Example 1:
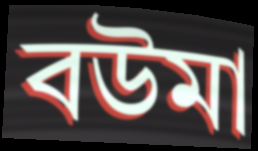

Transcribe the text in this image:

বউমা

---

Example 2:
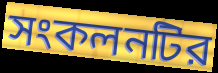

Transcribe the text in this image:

সংকলনটির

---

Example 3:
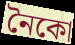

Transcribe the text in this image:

নৈকো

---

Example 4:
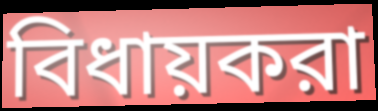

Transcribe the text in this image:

বিধায়করা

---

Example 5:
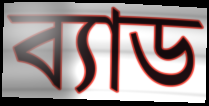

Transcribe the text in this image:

ব্যাড